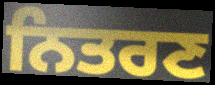
ਨਿਤਰਣ